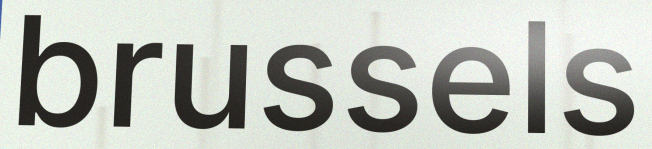
brussels